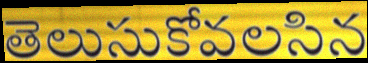
తెలుసుకోవలసిన